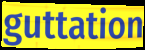
guttation